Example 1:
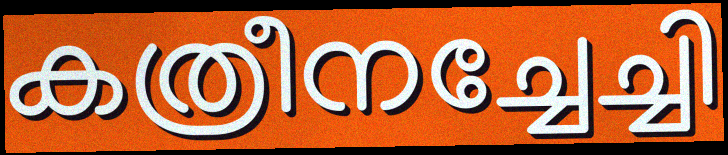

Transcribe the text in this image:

കത്രീനച്ചേച്ചി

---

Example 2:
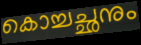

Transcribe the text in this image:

കൊച്ചച്ഛനും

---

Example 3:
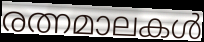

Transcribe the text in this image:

രത്നമാലകൾ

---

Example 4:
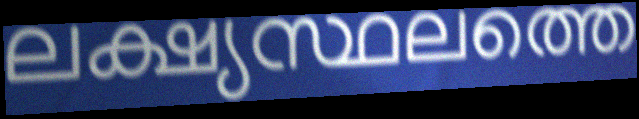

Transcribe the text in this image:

ലക്ഷ്യസ്ഥലത്തെ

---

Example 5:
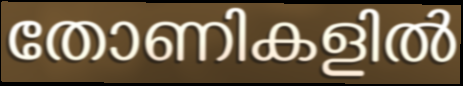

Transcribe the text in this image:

തോണികളിൽ